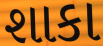
શાકા